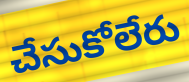
చేసుకోలేరు